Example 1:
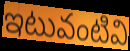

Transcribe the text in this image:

ఇటువంటివి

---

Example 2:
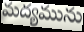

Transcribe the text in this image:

మద్యమును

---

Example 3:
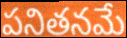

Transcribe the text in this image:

పనితనమే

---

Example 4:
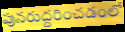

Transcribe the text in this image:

పునరుద్దరించడంలో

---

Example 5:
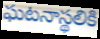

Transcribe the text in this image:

ఘటనాస్థలికి